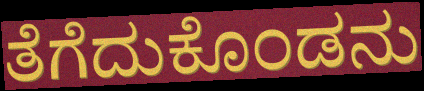
ತೆಗೆದುಕೊಂಡನು